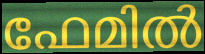
ഫേമിൽ